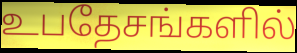
உபதேசங்களில்